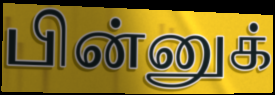
பின்னுக்